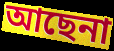
আছেনা